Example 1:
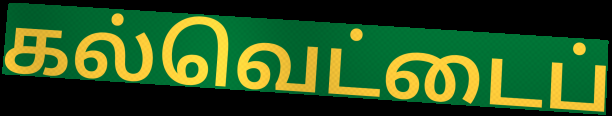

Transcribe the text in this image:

கல்வெட்டைப்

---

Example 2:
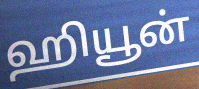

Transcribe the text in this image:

ஹியூன்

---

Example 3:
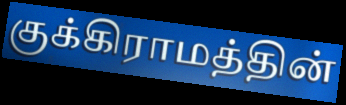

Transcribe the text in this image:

குக்கிராமத்தின்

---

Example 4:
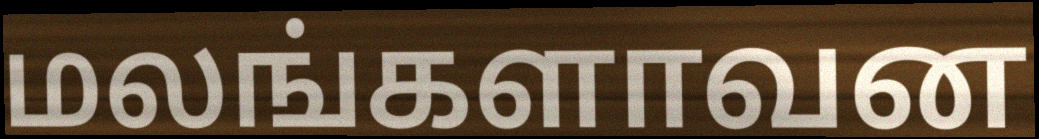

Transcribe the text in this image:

மலங்களாவன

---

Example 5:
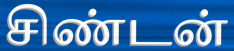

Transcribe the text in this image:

சிண்டன்